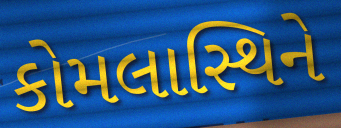
કોમલાસ્થિને